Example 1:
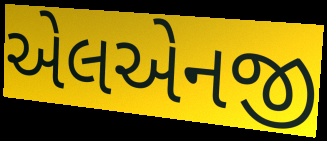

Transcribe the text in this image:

એલએનજી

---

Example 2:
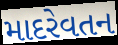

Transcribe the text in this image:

માદરેવતન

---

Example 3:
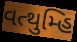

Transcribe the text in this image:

વત્થુમ્હિ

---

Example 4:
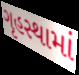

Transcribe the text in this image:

ગૃહસ્થામાં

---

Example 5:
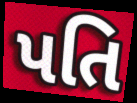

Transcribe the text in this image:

પતિ